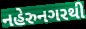
નહેરુનગરથી